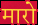
मारो